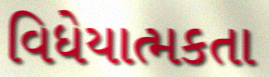
વિધેયાત્મકતા